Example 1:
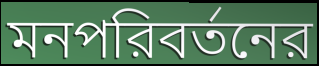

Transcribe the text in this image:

মনপরিবর্তনের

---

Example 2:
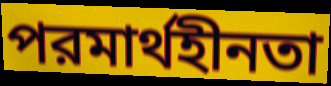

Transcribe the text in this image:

পরমার্থহীনতা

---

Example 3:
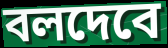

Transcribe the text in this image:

বলদেবে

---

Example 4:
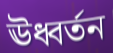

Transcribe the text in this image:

ঊধ্বর্তন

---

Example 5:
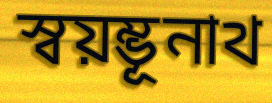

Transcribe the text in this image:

স্বয়ম্ভূনাথ